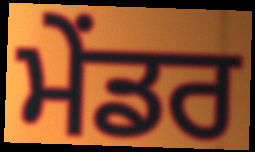
ਮੇਂਡਰ